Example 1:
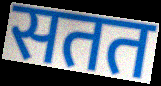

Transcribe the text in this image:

सतत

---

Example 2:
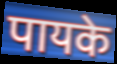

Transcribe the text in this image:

पायके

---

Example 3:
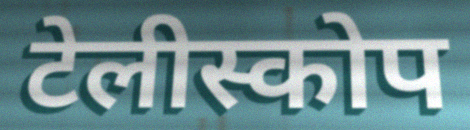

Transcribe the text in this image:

टेलीस्कोप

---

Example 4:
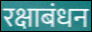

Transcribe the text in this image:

रक्षाबंधन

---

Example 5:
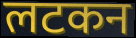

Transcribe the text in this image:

लटकन